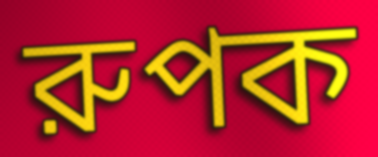
রুপক